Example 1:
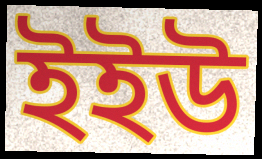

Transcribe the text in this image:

ইইউ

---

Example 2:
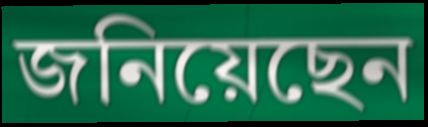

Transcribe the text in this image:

জনিয়েছেন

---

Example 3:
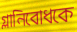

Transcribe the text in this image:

গ্লানিবোধকে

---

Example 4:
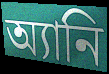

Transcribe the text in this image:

অ্যানি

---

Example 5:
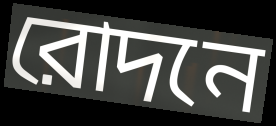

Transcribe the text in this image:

রোদনে